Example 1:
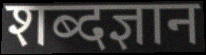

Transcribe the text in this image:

शब्दज्ञान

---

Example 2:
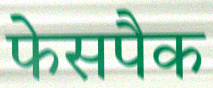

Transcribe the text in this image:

फेसपैक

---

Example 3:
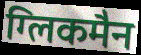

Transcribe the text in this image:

ग्लिकमैन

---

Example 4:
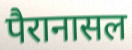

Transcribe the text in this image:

पैरानासल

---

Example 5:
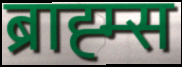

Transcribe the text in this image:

ब्राह्म्स